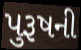
પુરૂષની